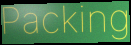
Packing